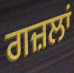
ਗਜ਼ਲਾਂ